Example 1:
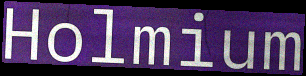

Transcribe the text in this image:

Holmium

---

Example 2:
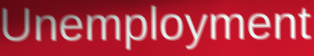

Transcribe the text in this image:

Unemployment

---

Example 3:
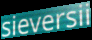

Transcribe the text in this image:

sieversii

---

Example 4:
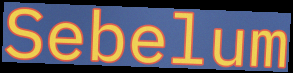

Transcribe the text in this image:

Sebelum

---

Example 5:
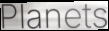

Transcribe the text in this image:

Planets